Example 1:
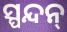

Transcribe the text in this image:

ସ୍ପନ୍ଦନ୍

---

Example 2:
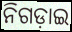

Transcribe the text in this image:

ନିଗଡ଼ାଇ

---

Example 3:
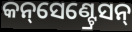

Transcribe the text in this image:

କନ୍‌ସେଣ୍ଟ୍ରେସନ୍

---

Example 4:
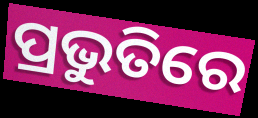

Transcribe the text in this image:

ପ୍ରଭୁତିରେ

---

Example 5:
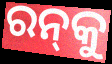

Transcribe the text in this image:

ରନ୍‌କୁ